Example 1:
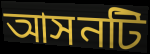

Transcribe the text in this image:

আসনটি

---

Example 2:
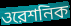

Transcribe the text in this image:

ওরেশনিক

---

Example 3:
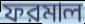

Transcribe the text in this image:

ফরমাল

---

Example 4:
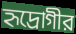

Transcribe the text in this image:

হৃদ্রোগীর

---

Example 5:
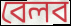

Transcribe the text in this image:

বেলব